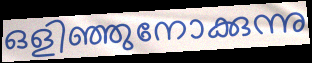
ഒളിഞ്ഞുനോക്കുന്നു